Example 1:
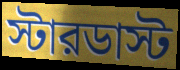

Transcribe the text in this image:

স্টারডাস্ট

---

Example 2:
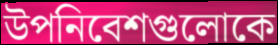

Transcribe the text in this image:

উপনিবেশগুলোকে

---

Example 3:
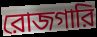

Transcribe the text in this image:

রোজগারি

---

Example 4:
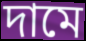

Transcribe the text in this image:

দামে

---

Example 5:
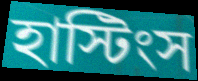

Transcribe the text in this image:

হাস্টিংস